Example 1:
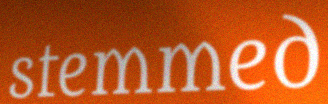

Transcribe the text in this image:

stemmed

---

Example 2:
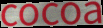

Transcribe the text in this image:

cocoa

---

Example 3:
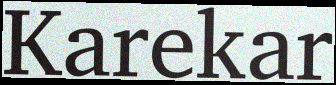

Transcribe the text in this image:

Karekar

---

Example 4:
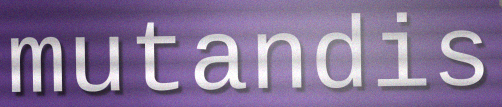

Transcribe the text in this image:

mutandis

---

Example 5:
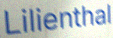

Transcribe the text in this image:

Lilienthal